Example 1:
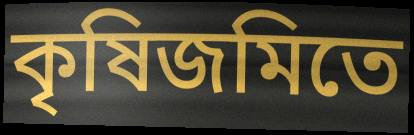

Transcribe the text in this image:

কৃষিজমিতে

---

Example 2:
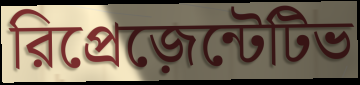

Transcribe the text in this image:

রিপ্রেজ়েন্টেটিভ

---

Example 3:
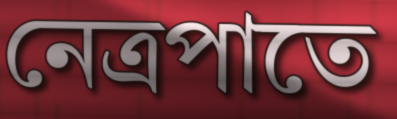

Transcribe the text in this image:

নেত্রপাতে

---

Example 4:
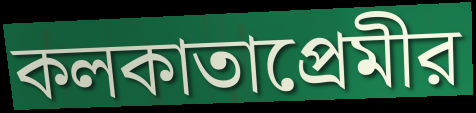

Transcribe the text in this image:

কলকাতাপ্রেমীর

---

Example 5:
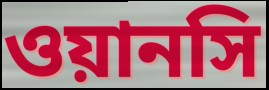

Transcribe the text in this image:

ওয়ানসি